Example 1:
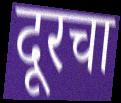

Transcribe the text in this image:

दूरचा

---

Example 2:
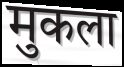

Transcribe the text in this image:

मुकला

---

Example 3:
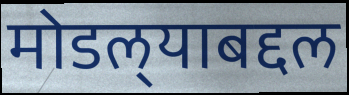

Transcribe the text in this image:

मोडल्याबद्दल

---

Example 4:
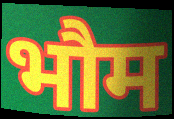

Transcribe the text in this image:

भौम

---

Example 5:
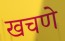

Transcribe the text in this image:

खचणे